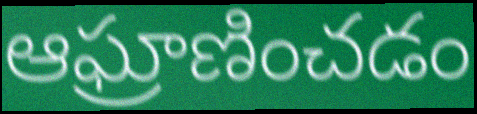
ఆఘ్రాణించడం